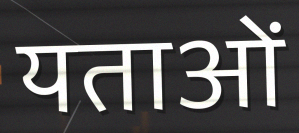
यताओं